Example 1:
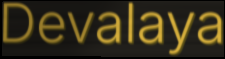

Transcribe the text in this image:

Devalaya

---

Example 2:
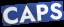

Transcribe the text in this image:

CAPS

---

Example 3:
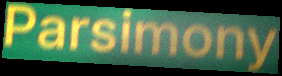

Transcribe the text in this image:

Parsimony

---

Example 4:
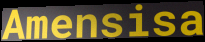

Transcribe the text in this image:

Amensisa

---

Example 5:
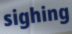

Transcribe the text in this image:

sighing